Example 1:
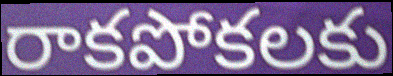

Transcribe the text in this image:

రాకపోకలకు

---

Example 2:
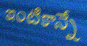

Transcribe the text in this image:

ఇంటికాన్నే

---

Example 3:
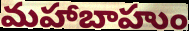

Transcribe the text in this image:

మహాబాహుం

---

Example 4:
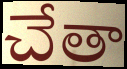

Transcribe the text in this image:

చేతా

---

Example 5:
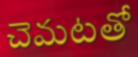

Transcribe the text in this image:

చెమటతో